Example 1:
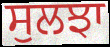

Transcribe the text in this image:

ਸੁਲਝਾ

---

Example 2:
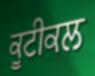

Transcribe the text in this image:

ਕੂਟੀਕਲ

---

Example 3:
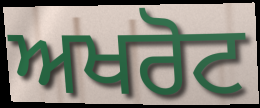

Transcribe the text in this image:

ਅਖਰੋਟ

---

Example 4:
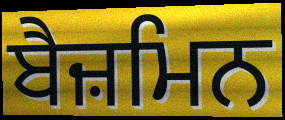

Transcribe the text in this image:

ਬੈਜ਼ਮਿਨ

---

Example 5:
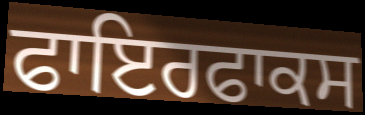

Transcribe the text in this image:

ਫਾਇਰਫਾਕਸ